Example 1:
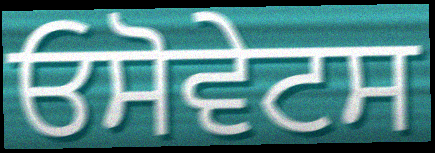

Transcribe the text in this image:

ਓਸੋਵੇਟਸ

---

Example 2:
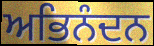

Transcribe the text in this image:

ਅਭਿਨੰਦਨ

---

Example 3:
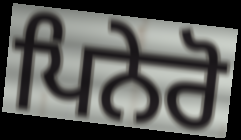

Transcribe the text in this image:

ਪਿਨੇਰੋ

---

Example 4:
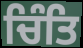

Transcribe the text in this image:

ਚਿੰਤਿ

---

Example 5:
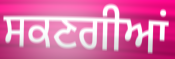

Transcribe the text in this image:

ਸਕਣਗੀਆਂ